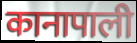
कानापाली